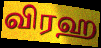
விரஹ